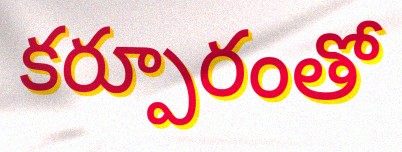
కర్పూరంతో